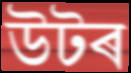
উটৰ